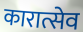
कारात्सेव